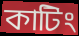
কাটিং